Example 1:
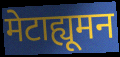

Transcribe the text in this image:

मेटाह्यूमन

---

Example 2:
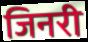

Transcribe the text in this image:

जिनरी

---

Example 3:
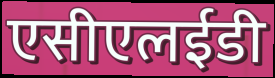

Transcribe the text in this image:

एसीएलईडी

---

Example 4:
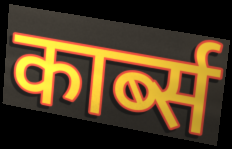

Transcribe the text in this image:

कार्ब्स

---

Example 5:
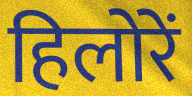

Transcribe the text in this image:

हिलोरें